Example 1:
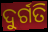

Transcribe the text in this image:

ଦୁର୍ଗତି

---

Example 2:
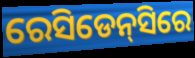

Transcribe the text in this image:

ରେସିଡେନ୍‌ସିରେ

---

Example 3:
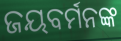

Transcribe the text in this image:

ଜୟବର୍ମନଙ୍କ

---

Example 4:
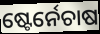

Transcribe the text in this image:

ଷ୍ଟେର୍ନେଚାଷ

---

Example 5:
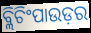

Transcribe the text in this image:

ବ୍ଲିଚିଂପାଉଡ଼ର